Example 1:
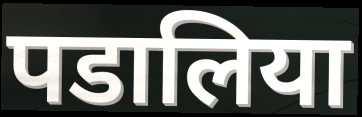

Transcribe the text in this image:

पडालिया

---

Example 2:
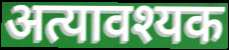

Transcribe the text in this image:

अत्यावश्यक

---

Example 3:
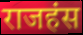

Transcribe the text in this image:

राजहंस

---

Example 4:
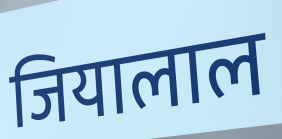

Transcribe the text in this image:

जियालाल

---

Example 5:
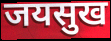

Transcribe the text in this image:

जयसुख